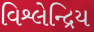
વિશ્લેન્દ્રિય